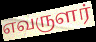
எவருளர்